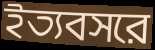
ইত্যবসরে